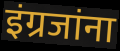
इंग्रजांना